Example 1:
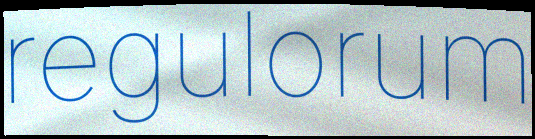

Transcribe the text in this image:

regulorum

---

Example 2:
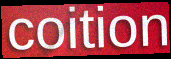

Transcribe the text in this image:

coition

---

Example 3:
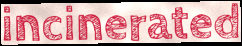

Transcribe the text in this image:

incinerated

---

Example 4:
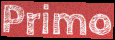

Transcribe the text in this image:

Primo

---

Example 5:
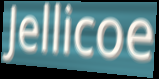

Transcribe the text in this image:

Jellicoe